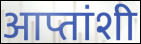
आप्तांशी